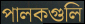
পালকগুলি